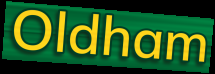
Oldham